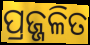
ପ୍ରଜ୍ଜଳିତ